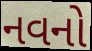
નવનો